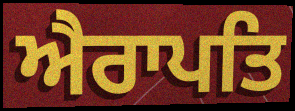
ਐਰਾਪਤਿ